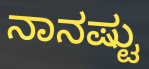
ನಾನಷ್ಟು